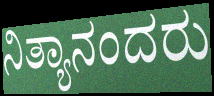
ನಿತ್ಯಾನಂದರು